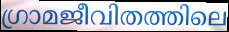
ഗ്രാമജീവിതത്തിലെ